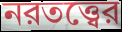
নরতত্ত্বের